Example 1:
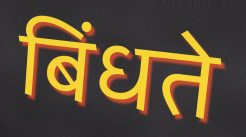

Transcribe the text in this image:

बिंधते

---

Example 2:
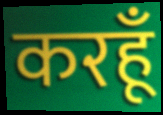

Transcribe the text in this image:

करहूँ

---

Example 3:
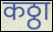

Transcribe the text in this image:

कठ्ठा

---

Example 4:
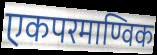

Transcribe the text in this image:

एकपरमाण्विक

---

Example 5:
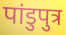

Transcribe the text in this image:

पांडुपुत्र